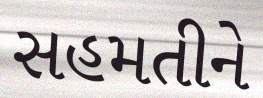
સહમતીને